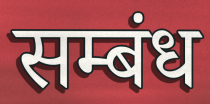
सम्बंध